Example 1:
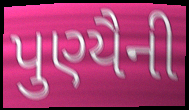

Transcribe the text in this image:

પુણ્યૈની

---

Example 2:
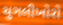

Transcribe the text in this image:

ચુગલીખોરો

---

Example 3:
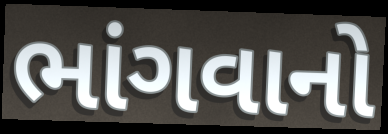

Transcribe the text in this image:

ભાંગવાનો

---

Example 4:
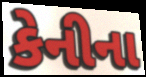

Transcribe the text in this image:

કેનીના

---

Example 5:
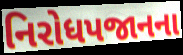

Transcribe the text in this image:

નિરોધપજાનના